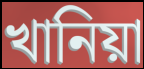
খানিয়া